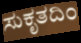
ಸುಕೃತದಿಂ